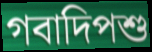
গবাদিপশু